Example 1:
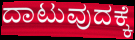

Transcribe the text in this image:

ದಾಟುವುದಕ್ಕೆ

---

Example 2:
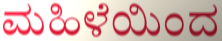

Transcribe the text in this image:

ಮಹಿಳೆಯಿಂದ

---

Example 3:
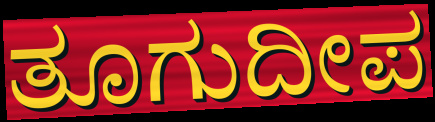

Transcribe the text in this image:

ತೂಗುದೀಪ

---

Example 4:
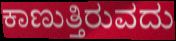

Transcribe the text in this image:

ಕಾಣುತ್ತಿರುವದು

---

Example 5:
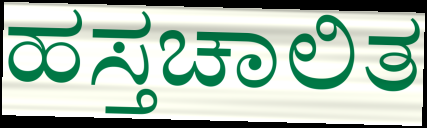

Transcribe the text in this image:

ಹಸ್ತಚಾಲಿತ